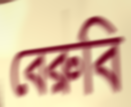
বেরুবি